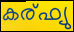
കര്ഫ്യു